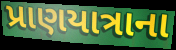
પ્રાણયાત્રાના